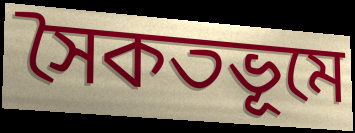
সৈকতভূমে